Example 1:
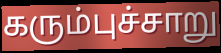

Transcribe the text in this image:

கரும்புச்சாறு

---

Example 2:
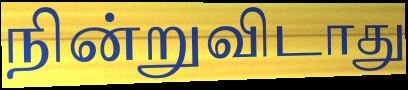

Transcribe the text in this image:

நின்றுவிடாது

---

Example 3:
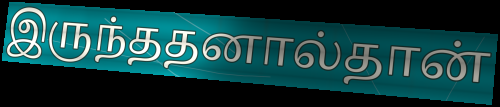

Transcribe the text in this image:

இருந்ததனால்தான்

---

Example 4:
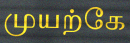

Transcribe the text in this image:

முயற்கே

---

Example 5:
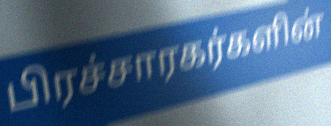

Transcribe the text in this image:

பிரச்சாரகர்களின்